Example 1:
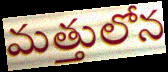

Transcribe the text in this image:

మత్తులోన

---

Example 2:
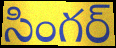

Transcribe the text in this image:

సింగర్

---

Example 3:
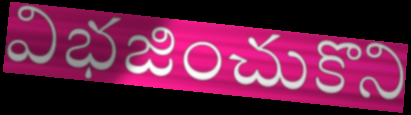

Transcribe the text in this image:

విభజించుకొని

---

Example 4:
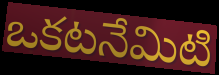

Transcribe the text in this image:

ఒకటనేమిటి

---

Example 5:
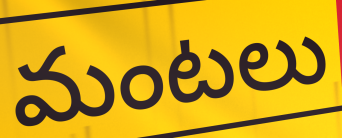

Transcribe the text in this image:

మంటలు